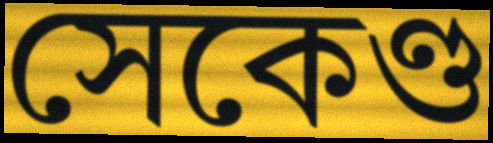
সেকেণ্ড